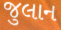
જુલાન